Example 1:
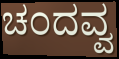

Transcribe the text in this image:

ಚಂದವ್ವ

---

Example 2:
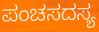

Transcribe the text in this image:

ಪಂಚಸದಸ್ಯ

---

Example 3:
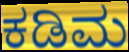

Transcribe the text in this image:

ಕಡಿಮ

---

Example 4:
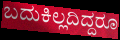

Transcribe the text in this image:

ಬದುಕಿಲ್ಲದಿದ್ದರೂ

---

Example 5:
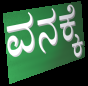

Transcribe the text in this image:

ವನಕ್ಕೆ